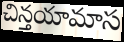
చిన్తయామాస